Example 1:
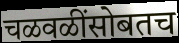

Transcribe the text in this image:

चळवळींसोबतच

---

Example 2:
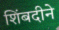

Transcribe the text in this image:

शिंबदीने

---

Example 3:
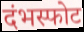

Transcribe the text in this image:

दंभस्फोट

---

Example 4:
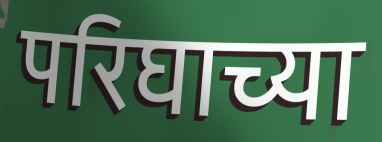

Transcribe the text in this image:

परिघाच्या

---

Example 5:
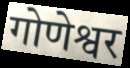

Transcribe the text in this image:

गोणेश्वर